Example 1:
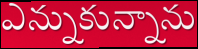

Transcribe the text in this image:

ఎన్నుకున్నాను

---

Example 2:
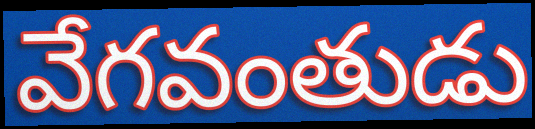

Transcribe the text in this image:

వేగవంతుడు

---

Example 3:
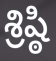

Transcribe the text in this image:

శ్రిష్ఠి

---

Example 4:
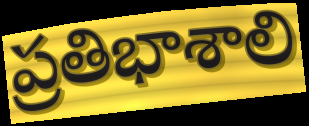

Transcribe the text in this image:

ప్రతిభాశాలి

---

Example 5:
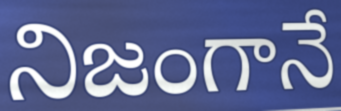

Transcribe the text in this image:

నిజంగానే